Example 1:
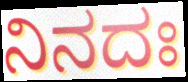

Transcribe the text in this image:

ನಿನದಃ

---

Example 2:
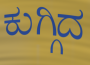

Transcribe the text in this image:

ಕುಗ್ಗಿದ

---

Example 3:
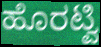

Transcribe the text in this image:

ಹೊರಟ್ವಿ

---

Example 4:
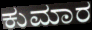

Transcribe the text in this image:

ಕುಮಾರ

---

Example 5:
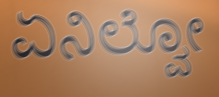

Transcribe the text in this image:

ಏನಿಲ್ವೋ